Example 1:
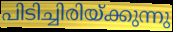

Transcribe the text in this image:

പിടിച്ചിരിയ്ക്കുന്നു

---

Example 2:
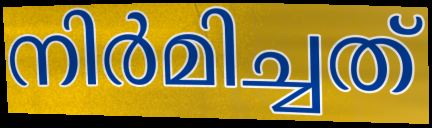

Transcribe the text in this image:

നിർമിച്ചത്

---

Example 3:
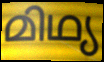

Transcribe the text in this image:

മിഥ്യ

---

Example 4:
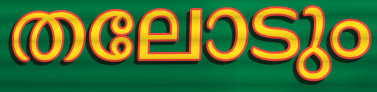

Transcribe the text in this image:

തലോടും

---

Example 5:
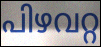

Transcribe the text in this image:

പിഴവറ്റ